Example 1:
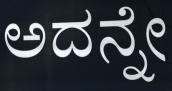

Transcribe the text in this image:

ಅದನ್ನೇ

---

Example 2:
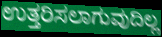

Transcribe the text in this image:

ಉತ್ತರಿಸಲಾಗುವುದಿಲ್ಲ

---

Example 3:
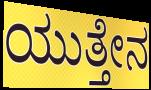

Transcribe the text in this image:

ಯುತ್ತೇನ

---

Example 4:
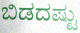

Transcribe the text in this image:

ಬಿಡದಷ್ಟು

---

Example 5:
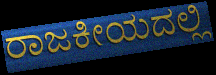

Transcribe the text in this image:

ರಾಜಕೀಯದಲ್ಲಿ